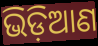
ଭିଡ଼ିଆଣ